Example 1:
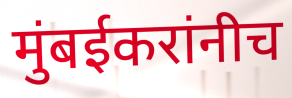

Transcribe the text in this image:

मुंबईकरांनीच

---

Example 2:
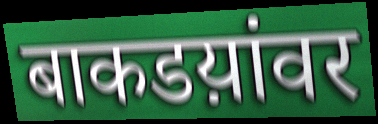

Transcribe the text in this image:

बाकडय़ांवर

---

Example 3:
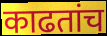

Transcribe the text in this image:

काढतांच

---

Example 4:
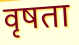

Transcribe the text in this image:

वृषता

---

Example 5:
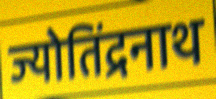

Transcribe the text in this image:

ज्योतिंद्रनाथ